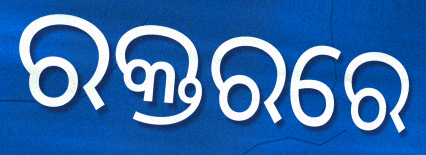
ରକ୍ତରରେ